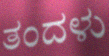
ತಂದಳು